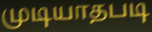
முடியாதபடி